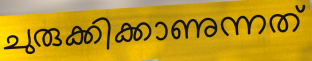
ചുരുക്കിക്കാണുന്നത്